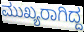
ಮುಖ್ಯರಾಗಿದ್ದ